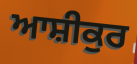
ਆਸ਼ੀਕੁਰ